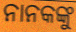
ନାନକଙ୍କୁ